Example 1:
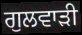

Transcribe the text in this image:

ਗੁਲਵਾੜੀ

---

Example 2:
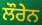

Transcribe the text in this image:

ਲੌਰੇਨ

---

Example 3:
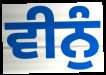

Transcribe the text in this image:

ਵੀਨੁੰ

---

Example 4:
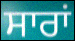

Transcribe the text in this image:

ਸਾਰਾਂ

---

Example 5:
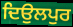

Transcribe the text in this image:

ਦਿਉਲਪੁਰ